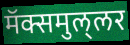
मॅक्समुल्लर